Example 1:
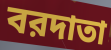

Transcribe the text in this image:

বরদাতা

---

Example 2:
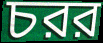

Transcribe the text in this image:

চরর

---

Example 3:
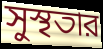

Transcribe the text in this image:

সুস্থতার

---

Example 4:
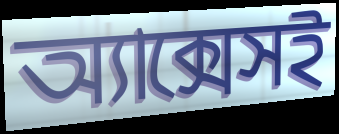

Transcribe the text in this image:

অ্যাক্সেসই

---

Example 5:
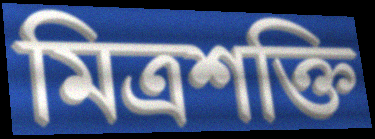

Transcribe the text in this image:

মিত্রশক্তি